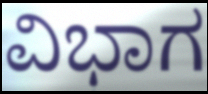
ವಿಭಾಗ